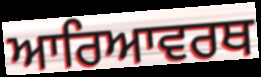
ਆਰਿਆਵਰਥ